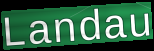
Landau